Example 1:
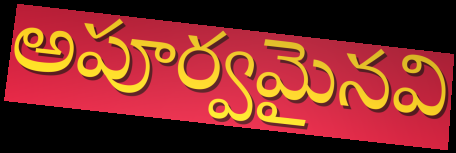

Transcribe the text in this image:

అపూర్వమైనవి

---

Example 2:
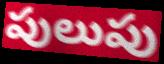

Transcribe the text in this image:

పులుపు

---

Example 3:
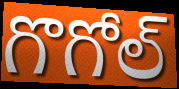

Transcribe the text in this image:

గొగోల్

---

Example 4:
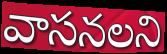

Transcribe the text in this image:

వాసనలని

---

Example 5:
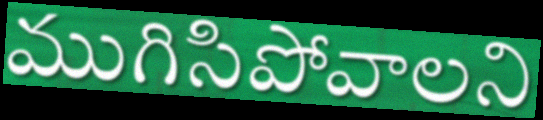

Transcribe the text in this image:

ముగిసిపోవాలని